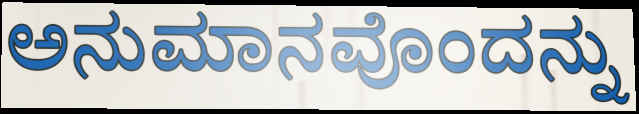
ಅನುಮಾನವೊಂದನ್ನು